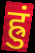
ह्रुं